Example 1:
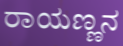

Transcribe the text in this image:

ರಾಯಣ್ಣನ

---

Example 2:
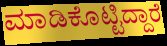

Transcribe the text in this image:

ಮಾಡಿಕೊಟ್ಟಿದ್ದಾರೆ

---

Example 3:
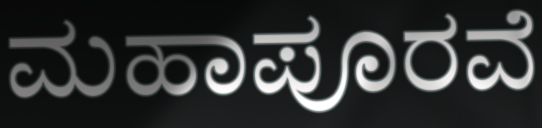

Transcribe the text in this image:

ಮಹಾಪೂರವೆ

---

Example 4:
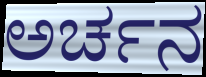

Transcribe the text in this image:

ಅರ್ಚನ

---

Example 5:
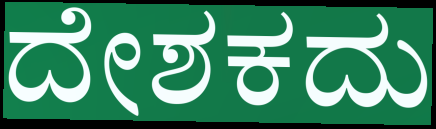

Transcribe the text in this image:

ದೇಶಕದು